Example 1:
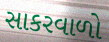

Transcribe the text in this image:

સાકરવાળો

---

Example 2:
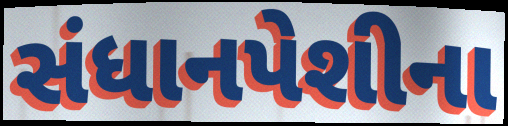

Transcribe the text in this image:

સંધાનપેશીના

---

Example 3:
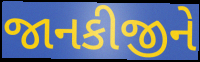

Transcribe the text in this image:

જાનકીજીને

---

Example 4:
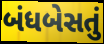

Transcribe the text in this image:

બંધબેસતું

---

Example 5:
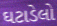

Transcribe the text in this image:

ઘટાડેલો